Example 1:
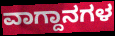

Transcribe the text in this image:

ವಾಗ್ದಾನಗಳ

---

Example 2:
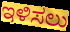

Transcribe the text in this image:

ಇಳಿಸಲು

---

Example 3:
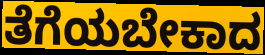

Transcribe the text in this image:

ತೆಗೆಯಬೇಕಾದ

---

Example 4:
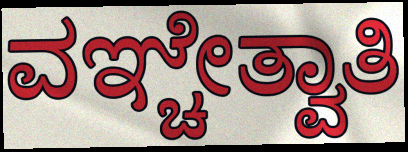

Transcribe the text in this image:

ವಞ್ಚೇತ್ವಾತಿ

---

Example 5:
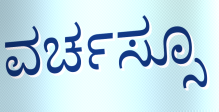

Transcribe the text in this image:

ವರ್ಚಸ್ಸೂ